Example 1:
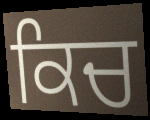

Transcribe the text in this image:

ਕਿਚ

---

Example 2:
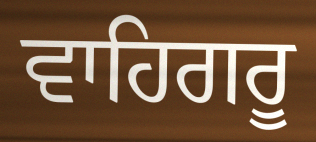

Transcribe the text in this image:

ਵਾਹਿਗਰੂ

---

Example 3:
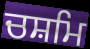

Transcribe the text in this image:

ਚਸ਼ਮਿ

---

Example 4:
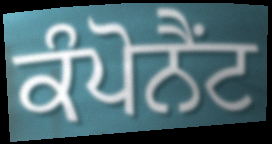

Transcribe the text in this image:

ਕੰਪੋਨੈਂਟ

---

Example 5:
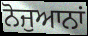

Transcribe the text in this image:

ਨੋਜੁਆਨਾਂ